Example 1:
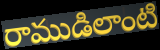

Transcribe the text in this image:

రాముడిలాంటి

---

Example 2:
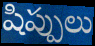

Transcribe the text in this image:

షిప్పులు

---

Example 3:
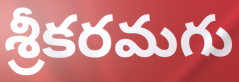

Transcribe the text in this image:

శ్రీకరమగు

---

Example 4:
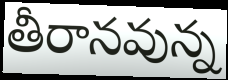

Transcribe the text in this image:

తీరానవున్న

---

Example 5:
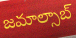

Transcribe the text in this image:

జమాల్సాబ్